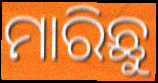
ମାରିଛୁ